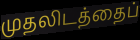
முதலிடத்தைப்